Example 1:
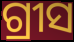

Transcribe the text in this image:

ଗ୍ରୀସ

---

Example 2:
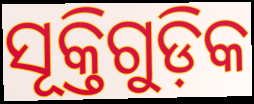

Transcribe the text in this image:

ସୂକ୍ତିଗୁଡ଼ିକ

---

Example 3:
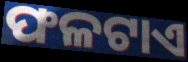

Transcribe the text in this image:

ଫଳଟାଏ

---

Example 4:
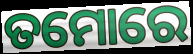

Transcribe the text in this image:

ତମୋରେ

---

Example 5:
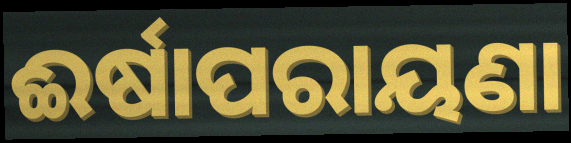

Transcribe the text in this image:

ଈର୍ଷାପରାୟଣା